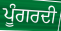
ਪੂੰਗਰਦੀ